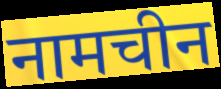
नामचीन